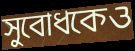
সুবোধকেও